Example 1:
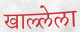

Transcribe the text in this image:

खाल्लेला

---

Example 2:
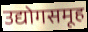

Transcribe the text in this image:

उद्योगसमूह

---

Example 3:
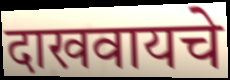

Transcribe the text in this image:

दाखवायचे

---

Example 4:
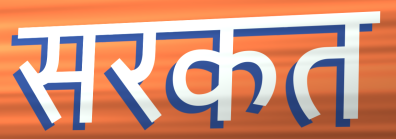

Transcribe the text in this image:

सरकत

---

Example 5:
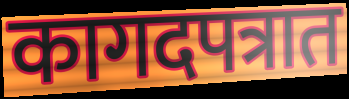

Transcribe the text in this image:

कागदपत्रात